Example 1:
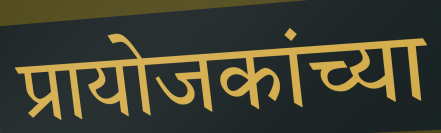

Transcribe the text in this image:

प्रायोजकांच्या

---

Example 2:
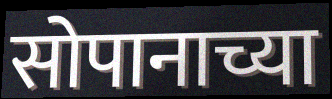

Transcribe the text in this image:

सोपानाच्या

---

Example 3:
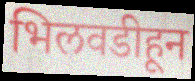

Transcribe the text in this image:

भिलवडीहून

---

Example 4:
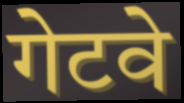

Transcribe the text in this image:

गेटवे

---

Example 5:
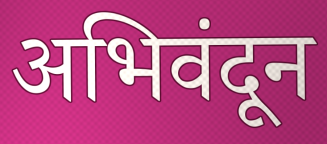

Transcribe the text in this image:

अभिवंदून